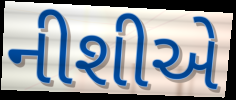
નીશીએ